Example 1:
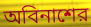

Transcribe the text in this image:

অবিনাশের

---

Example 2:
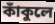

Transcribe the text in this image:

কাঁকুলে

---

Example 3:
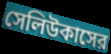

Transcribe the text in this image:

সেলিউকাসের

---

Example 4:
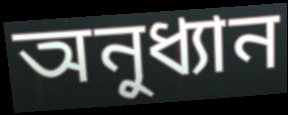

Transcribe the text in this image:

অনুধ্যান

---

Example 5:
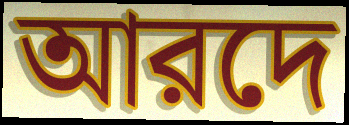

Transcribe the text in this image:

আরদে